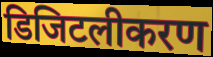
डिजिटलीकरण